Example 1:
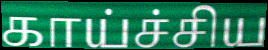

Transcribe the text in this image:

காய்ச்சிய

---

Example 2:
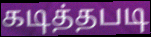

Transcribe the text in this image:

கடித்தபடி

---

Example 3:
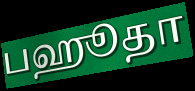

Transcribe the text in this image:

பஹூதா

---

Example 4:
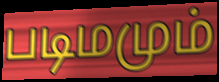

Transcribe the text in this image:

படிமமும்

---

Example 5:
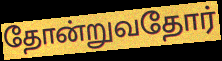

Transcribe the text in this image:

தோன்றுவதோர்